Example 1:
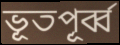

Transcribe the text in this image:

ভূতপূর্ব্ব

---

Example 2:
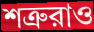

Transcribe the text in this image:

শত্রুরাও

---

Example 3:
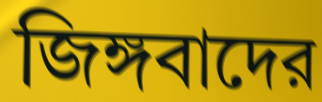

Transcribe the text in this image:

জিঙ্গবাদের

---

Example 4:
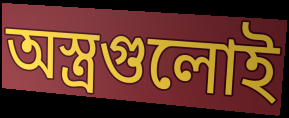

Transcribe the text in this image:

অস্ত্রগুলোই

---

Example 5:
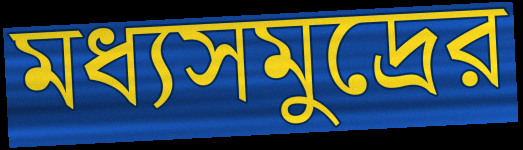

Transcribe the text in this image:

মধ্যসমুদ্রের